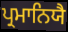
ਪ੍ਰਮਾਨਿਯੈ